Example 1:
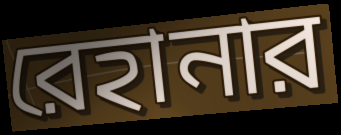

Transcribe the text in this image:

রেহানার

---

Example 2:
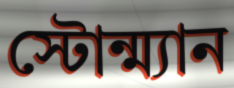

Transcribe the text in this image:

স্টোন্ম্যান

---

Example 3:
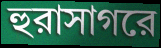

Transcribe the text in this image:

হুরাসাগরে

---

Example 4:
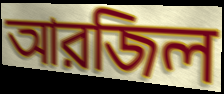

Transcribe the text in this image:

আরজিল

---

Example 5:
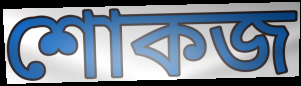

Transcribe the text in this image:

শোকজ